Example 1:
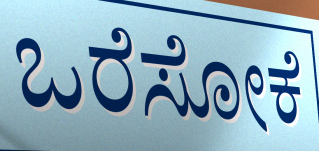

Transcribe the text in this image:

ಒರೆಸೋಕೆ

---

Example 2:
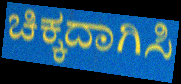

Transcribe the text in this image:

ಚಿಕ್ಕದಾಗಿಸಿ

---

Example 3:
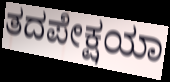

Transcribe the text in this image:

ತದಪೇಕ್ಷಯಾ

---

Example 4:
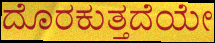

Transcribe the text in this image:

ದೊರಕುತ್ತದೆಯೇ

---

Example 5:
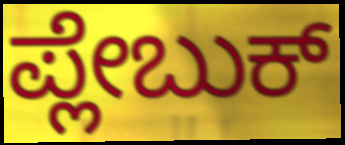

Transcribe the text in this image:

ಪ್ಲೇಬುಕ್